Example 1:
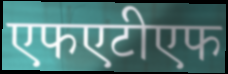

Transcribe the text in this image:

एफएटीएफ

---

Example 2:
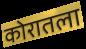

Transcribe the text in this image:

कोरातला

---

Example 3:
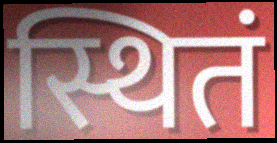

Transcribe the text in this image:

स्थितं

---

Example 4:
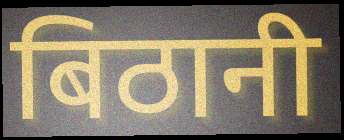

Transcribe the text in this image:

बिठानी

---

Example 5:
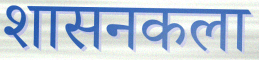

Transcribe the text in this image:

शासनकला